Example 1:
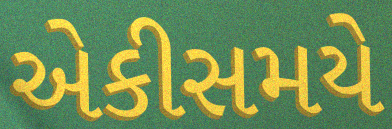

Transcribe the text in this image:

એકીસમયે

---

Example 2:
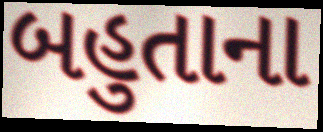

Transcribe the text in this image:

બહુતાના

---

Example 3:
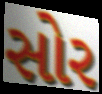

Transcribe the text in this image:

સોર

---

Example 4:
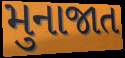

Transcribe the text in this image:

મુનાજાત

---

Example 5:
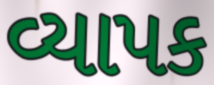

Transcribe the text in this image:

વ્યાપક